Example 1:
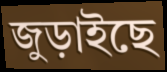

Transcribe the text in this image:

জুড়াইছে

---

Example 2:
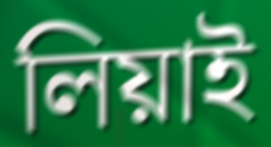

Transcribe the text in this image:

লিয়াই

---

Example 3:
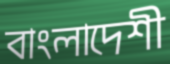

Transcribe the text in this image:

বাংলাদেশী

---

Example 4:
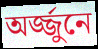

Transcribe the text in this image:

অর্জ্জুনে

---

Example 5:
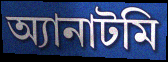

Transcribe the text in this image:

অ্যানাটমি